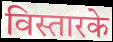
विस्तारके